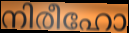
നിരീഹോ